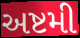
અષ્ટમી